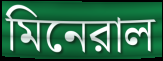
মিনেরাল